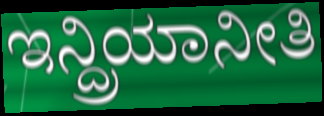
ಇನ್ದ್ರಿಯಾನೀತಿ